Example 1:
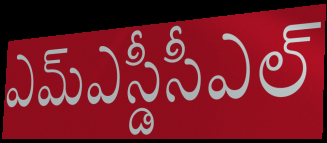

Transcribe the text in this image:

ఎమ్ఎస్డీసీఎల్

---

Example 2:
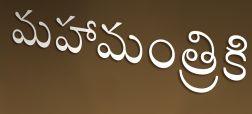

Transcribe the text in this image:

మహామంత్రికి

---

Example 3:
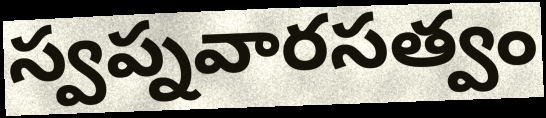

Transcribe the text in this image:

స్వప్నవారసత్వం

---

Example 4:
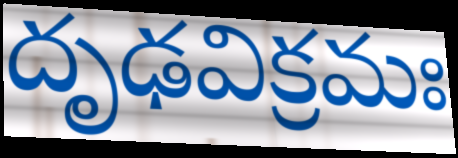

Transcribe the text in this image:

దృఢవిక్రమః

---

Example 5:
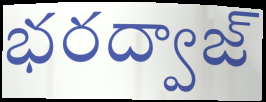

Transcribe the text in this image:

భరద్వాజ్